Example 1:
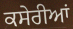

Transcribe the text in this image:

ਕਸੇਰੀਆਂ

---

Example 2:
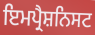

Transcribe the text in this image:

ਇਮਪ੍ਰੈਸ਼ਨਿਸਟ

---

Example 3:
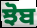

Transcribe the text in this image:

ਝੋਬ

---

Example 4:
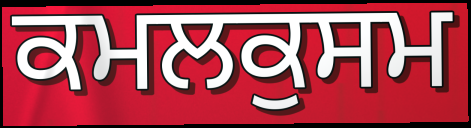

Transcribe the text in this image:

ਕਮਲਕੁਸਮ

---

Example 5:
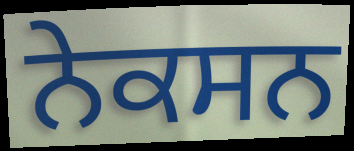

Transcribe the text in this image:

ਨੇਕਸਨ